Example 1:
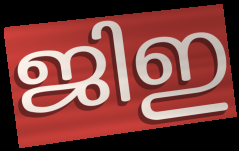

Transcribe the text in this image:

ജിഇ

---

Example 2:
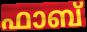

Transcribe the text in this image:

ഫാബ്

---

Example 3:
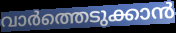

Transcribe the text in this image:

വാർത്തെടുക്കാൻ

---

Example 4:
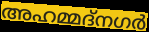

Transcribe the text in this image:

അഹമ്മദ്നഗർ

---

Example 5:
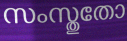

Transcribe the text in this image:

സംസ്തുതോ